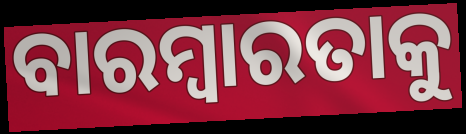
ବାରମ୍ବାରତାକୁ